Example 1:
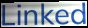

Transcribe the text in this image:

Linked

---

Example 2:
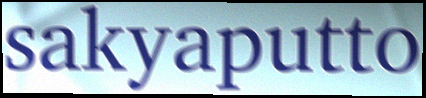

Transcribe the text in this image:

sakyaputto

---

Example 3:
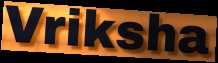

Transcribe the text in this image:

Vriksha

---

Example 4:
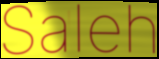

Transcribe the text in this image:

Saleh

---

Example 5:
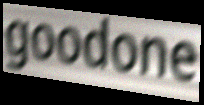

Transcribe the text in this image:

goodone